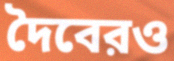
দৈবেরও